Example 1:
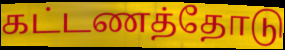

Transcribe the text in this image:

கட்டணத்தோடு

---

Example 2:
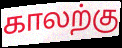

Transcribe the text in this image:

காலற்கு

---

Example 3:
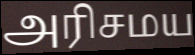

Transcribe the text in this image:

அரிசமய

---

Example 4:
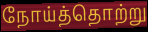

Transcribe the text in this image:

நோய்த்தொற்று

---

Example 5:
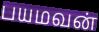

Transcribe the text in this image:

பயமவன்